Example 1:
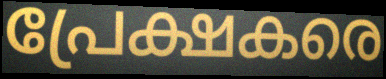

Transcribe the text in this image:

പ്രേക്ഷകരെ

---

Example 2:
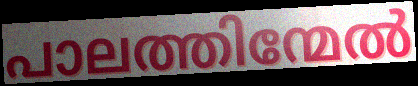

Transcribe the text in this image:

പാലത്തിന്മേൽ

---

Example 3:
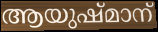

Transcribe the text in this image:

ആയുഷ്മാന്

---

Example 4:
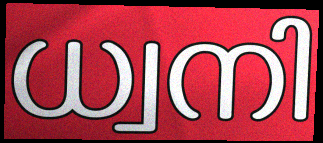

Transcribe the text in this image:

ധ്വനി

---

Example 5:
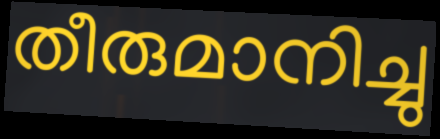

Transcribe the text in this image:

തീരുമാനിച്ചു